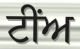
ਟੀਂਅ